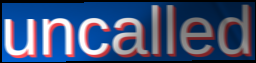
uncalled